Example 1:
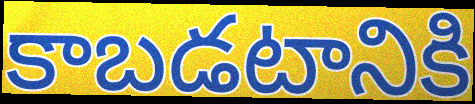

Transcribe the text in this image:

కాబడటానికి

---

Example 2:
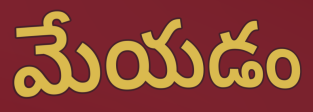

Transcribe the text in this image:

మేయడం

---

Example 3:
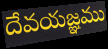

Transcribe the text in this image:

దేవయజ్ఞము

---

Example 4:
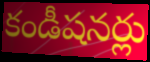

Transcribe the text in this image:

కండీషనర్లు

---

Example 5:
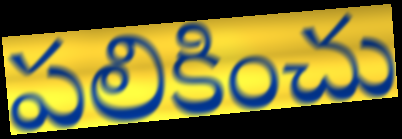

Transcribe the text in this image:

పలికించు